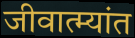
जीवात्म्यांत